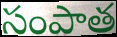
సంపాత